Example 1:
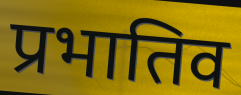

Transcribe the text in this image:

प्रभातिव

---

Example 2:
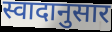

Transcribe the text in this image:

स्वादानुसार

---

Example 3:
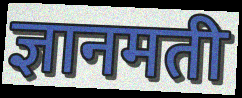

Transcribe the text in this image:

ज्ञानमती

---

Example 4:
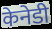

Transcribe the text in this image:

केनेडी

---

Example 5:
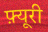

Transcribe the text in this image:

फ़्यूरी